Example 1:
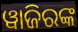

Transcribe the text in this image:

ୱାଜିରଙ୍କ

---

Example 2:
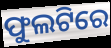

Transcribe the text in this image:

ଫୁଲଟିରେ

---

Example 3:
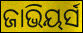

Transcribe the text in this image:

ଜାଭିୟର୍ସ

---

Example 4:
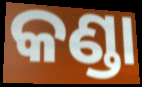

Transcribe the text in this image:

କଣ୍ଡା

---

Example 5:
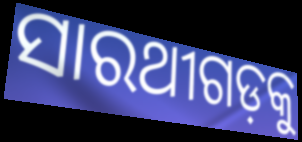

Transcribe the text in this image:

ସାରଥୀଗଡ଼କୁ